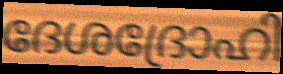
ദേശദ്രോഹി